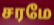
சரமே